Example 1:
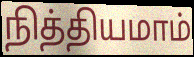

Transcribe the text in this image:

நித்தியமாம்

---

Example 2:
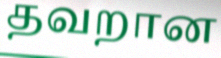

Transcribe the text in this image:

தவறான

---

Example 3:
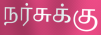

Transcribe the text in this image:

நர்சுக்கு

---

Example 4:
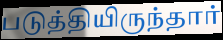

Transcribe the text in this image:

படுத்தியிருந்தார்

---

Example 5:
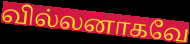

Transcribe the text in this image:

வில்லனாகவே